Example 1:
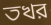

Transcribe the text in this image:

তখর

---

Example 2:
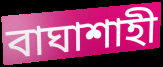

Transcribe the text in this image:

বাঘাশাহী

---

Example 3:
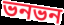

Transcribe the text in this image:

ভনভন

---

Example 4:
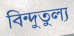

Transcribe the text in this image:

বিন্দুতুল্য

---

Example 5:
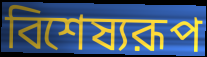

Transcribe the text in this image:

বিশেষ্যরূপ